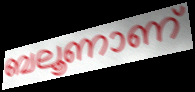
ബലൂണാണ്